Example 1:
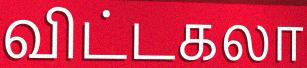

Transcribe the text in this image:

விட்டகலா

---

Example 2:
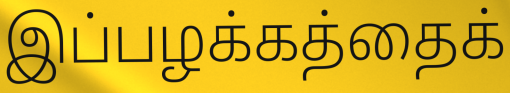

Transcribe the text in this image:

இப்பழக்கத்தைக்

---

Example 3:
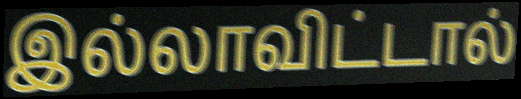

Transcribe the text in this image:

இல்லாவிட்டால்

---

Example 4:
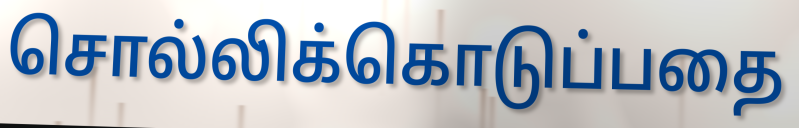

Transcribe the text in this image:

சொல்லிக்கொடுப்பதை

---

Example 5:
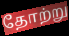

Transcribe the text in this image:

தோற்று